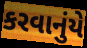
કરવાનુંયે